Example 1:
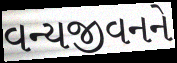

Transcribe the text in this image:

વન્યજીવનને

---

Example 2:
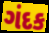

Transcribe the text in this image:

ગંદક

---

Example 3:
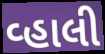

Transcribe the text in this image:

વ્હાલી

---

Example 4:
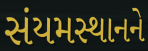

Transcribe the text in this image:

સંયમસ્થાનને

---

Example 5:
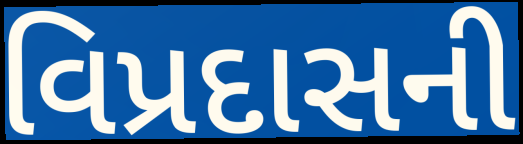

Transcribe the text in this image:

વિપ્રદાસની